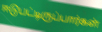
ஈடுபட்டிருப்பார்கள்